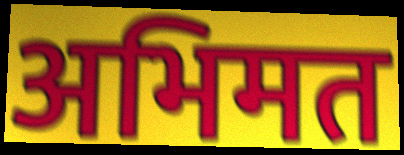
अभिमत